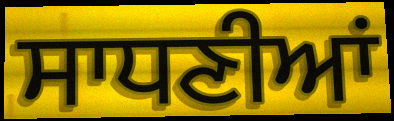
ਸਾਧਣੀਆਂ